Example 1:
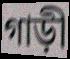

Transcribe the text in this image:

গাড়ী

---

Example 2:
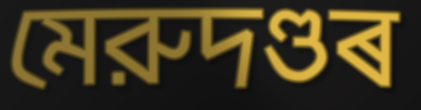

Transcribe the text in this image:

মেৰুদণ্ডৰ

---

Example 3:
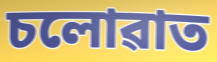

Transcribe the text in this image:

চলোৱাত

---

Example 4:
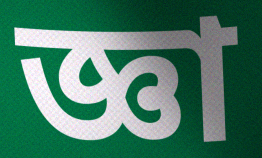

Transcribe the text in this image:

জ্ঞা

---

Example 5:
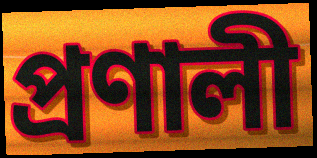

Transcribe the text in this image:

প্ৰণালী